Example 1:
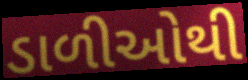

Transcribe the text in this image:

ડાળીઓથી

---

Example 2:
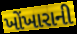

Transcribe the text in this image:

ખોંખારાની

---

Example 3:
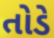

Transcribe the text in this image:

તોડે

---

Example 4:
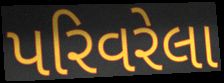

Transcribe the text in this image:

પરિવરેલા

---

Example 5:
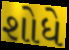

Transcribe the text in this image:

શોધે